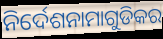
ନିର୍ଦେଶନାମାଗୁଡିକର